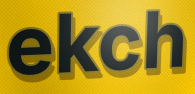
ekch